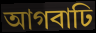
আগবাঢি